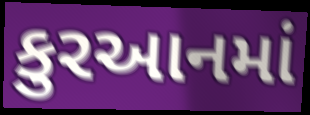
કુરઆનમાં